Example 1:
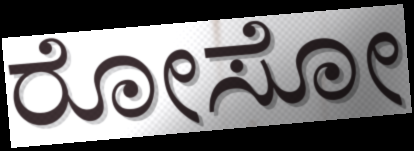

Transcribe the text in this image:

ರೋಸೋ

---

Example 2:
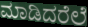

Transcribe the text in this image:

ಮಾಡಿದರೆಲೆ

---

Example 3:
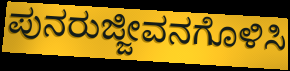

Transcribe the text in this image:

ಪುನರುಜ್ಜೀವನಗೊಳಿಸಿ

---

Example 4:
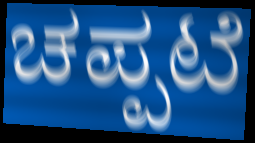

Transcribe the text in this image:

ಚಪ್ಪಟೆ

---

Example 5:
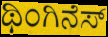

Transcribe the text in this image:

ಥಿಂಗಿನೆಸ್